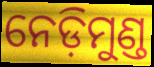
ନେଡ଼ିମୁଣ୍ଡ